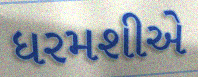
ધરમશીએ